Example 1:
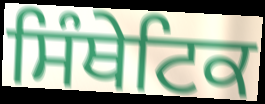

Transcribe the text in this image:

ਸਿੰਥੇਟਿਕ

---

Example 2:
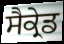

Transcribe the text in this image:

ਸੈਕ੍ਰੇਡ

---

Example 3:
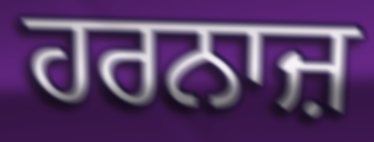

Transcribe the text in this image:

ਹਰਨਾਜ਼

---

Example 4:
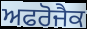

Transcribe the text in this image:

ਅਫਰੋਜੈਕ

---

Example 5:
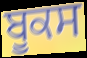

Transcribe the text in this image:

ਬੂਕਸ